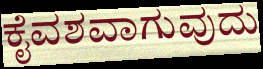
ಕೈವಶವಾಗುವುದು